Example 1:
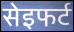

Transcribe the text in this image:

सेइफर्ट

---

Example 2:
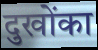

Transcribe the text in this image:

दुखोंका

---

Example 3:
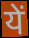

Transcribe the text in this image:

यें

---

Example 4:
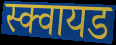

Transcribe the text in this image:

स्क्वायड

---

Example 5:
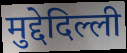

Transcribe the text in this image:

मुद्देदिल्ली